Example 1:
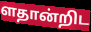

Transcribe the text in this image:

ளதான்றிட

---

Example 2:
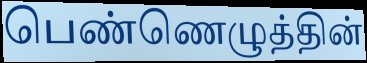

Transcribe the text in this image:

பெண்ணெழுத்தின்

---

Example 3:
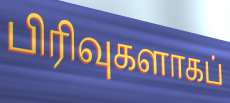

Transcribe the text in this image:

பிரிவுகளாகப்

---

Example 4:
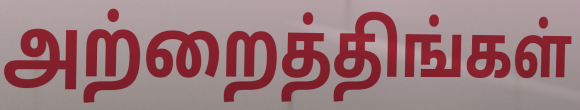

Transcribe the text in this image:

அற்றைத்திங்கள்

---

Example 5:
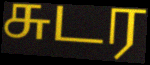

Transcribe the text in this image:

சுடர